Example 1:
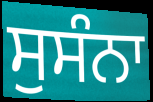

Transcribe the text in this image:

ਸੁਸੰਨਾ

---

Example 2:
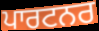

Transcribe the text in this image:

ਪਾਰਟਨਰ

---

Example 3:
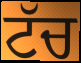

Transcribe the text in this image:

ਟੱਚ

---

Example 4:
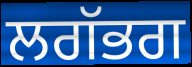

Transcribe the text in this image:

ਲਗੱਭਗ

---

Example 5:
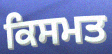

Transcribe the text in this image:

ਕਿਸਮਤ